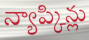
న్యాప్కిన్లు